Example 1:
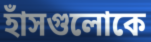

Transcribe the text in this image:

হাঁসগুলোকে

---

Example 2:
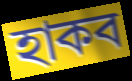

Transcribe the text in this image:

হাকব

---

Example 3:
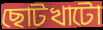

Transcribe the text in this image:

ছোটখাটো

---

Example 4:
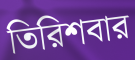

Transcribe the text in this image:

তিরিশবার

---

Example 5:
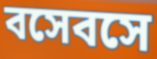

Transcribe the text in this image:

বসেবসে